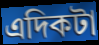
এদিকটা